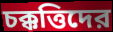
চক্কত্তিদের